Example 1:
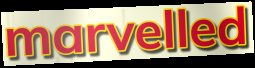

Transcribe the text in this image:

marvelled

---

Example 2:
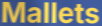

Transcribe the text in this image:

Mallets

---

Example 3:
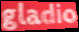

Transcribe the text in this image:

gladio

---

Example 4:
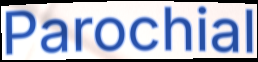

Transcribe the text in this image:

Parochial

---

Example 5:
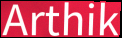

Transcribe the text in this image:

Arthik